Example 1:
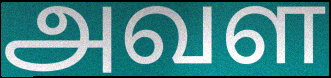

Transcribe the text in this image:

அவள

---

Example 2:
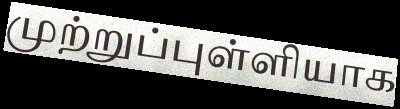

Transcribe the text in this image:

முற்றுப்புள்ளியாக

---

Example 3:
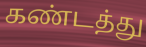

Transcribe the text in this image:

கண்டத்து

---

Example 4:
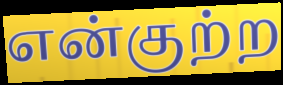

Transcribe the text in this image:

என்குற்ற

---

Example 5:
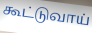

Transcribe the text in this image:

கூட்டுவாய்